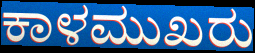
ಕಾಳಮುಖರು